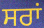
ਸਰਾਂ